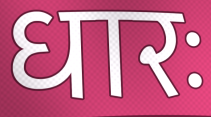
धारः